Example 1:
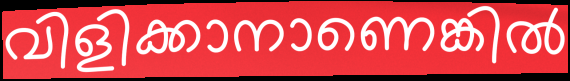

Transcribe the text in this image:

വിളിക്കാനാണെങ്കിൽ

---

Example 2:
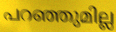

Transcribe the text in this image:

പറഞ്ഞുമില്ല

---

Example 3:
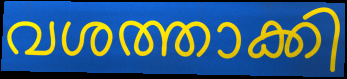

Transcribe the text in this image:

വശത്താക്കി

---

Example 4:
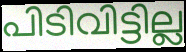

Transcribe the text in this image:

പിടിവിട്ടില്ല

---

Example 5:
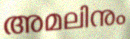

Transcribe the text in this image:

അമലിനും